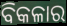
ବିକଳାର